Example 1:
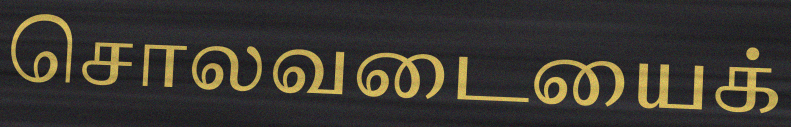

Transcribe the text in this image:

சொலவடையைக்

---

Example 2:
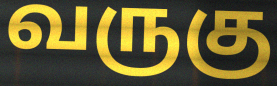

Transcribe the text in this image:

வருகு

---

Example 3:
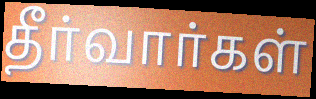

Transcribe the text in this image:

தீர்வார்கள்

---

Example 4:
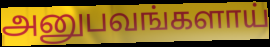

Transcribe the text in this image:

அனுபவங்களாய்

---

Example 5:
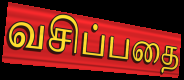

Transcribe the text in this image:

வசிப்பதை